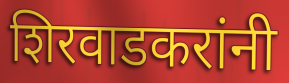
शिरवाडकरांनी